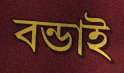
বন্ডাই